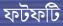
ফটফটি